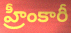
హ్రీంకారీ